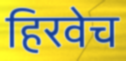
हिरवेच